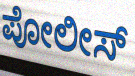
ಪೋಲೀಸ್